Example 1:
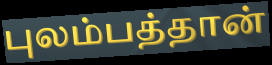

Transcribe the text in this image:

புலம்பத்தான்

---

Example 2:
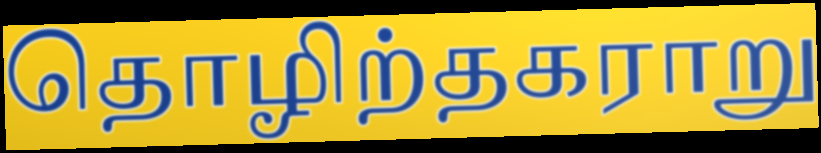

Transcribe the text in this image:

தொழிற்தகராறு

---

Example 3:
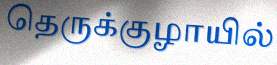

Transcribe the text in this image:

தெருக்குழாயில்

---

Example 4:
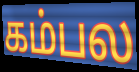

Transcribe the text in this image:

கம்பல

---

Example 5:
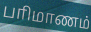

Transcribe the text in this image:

பரிமாணம்